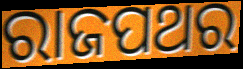
ରାଜପଥର